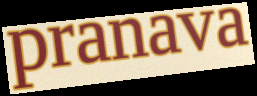
pranava